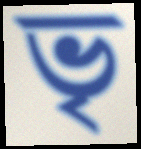
ভৃ